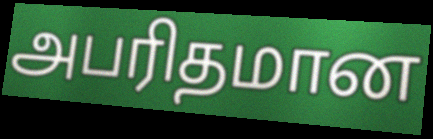
அபரிதமான